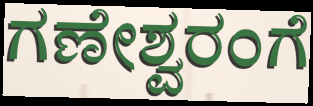
ಗಣೇಶ್ವರಂಗೆ